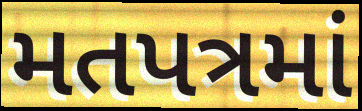
મતપત્રમાં